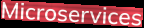
Microservices